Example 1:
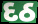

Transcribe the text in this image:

દઠ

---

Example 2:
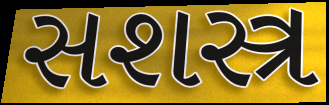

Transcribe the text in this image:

સશસ્ત્ર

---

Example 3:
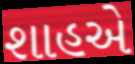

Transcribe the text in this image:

શાહએ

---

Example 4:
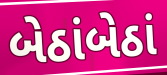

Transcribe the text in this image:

બેઠાંબેઠાં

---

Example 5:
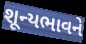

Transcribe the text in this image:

શૂન્યભાવને